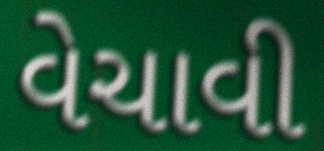
વેચાવી